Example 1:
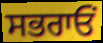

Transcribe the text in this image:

ਸਭਰਾਓਂ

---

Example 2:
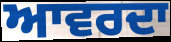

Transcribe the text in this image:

ਆਵਰਦਾ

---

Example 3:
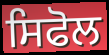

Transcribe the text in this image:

ਸਿਫੋਲ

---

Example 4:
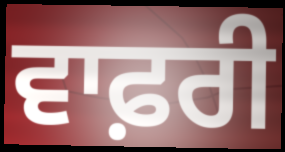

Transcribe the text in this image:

ਵਾਫ਼ਰੀ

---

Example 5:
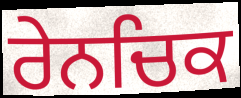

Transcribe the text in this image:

ਰੇਨਚਿਕ